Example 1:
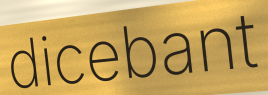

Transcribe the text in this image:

dicebant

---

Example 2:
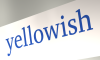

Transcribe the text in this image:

yellowish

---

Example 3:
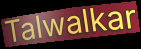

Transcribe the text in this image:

Talwalkar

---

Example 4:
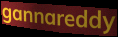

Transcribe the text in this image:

gannareddy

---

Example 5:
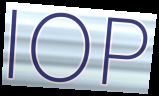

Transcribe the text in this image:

IOP